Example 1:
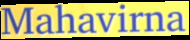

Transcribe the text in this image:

Mahavirna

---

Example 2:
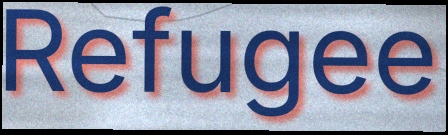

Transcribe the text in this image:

Refugee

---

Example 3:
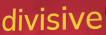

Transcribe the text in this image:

divisive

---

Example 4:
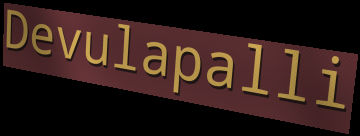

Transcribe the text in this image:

Devulapalli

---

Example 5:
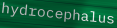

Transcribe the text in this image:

hydrocephalus